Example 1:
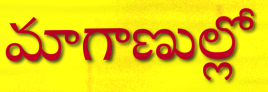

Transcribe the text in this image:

మాగాణుల్లో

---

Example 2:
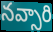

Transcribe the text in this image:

నవ్సారి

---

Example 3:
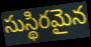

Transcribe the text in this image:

సుస్థిరమైన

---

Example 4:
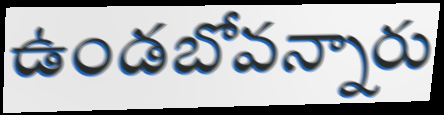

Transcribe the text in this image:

ఉండబోవన్నారు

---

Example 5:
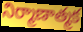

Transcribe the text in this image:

నిర్మాణాత్మక